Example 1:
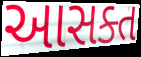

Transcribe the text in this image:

આસક્ત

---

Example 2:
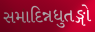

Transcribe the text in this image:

સમાદિન્નધુતઙ્ગો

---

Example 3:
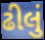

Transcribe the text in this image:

ઢીલું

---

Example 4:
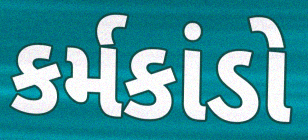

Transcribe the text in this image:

કર્મકાંડો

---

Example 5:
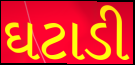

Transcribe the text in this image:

ઘટાડી